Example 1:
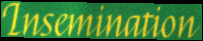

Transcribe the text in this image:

Insemination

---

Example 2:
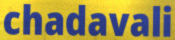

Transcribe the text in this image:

chadavali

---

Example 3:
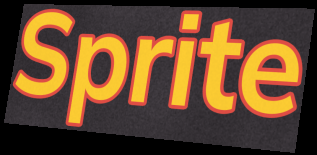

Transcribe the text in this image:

Sprite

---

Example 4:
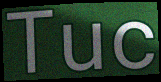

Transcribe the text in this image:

Tuc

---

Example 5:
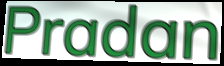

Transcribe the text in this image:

Pradan